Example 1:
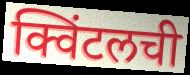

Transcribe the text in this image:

क्विंटलची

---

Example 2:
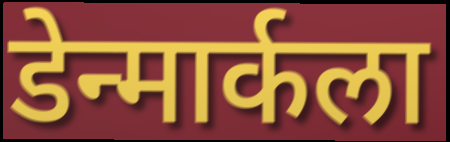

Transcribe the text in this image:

डेन्मार्कला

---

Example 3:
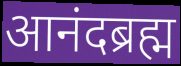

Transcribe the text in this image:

आनंदब्रह्म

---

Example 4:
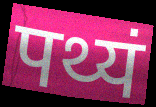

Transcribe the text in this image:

पथ्यं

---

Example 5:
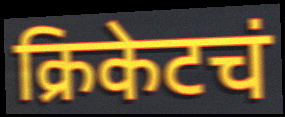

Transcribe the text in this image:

क्रिकेटचं